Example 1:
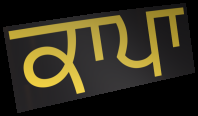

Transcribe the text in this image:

ਕਾਪਾ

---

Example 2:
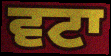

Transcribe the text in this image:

ਵਟਾ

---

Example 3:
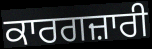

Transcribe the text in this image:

ਕਾਰਗਜ਼ਾਰੀ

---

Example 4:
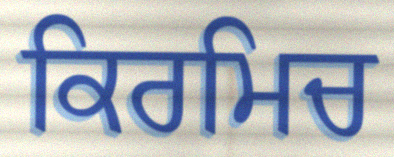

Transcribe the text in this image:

ਕਿਰਮਿਚ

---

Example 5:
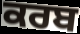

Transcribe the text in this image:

ਕਰਬ